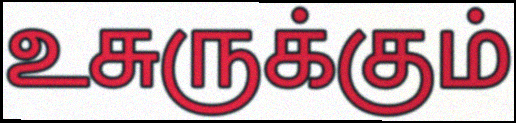
உசுருக்கும்